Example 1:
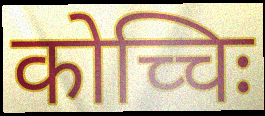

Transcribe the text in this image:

कोच्चिः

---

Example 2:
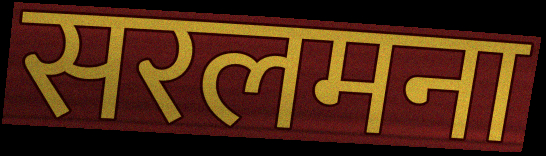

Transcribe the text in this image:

सरलमना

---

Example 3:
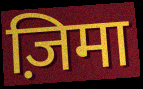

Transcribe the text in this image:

ज़िमा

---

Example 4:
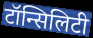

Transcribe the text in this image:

टॉन्सिलिटी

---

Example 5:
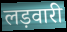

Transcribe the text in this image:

लड़वारी